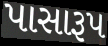
પાસારૂપ